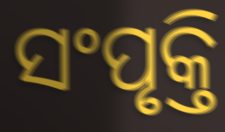
ସଂପୃକ୍ତି